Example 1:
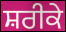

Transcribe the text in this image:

ਸ਼ਰੀਕੇ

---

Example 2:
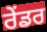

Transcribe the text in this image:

ਰੇੰਡਰ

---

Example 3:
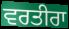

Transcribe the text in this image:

ਵਰਤੀਰਾ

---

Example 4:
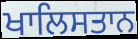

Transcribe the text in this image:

ਖਾਲਿਸਤਾਨ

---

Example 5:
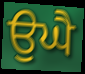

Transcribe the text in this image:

ਉਘੈ